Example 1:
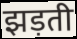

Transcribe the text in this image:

झड़ती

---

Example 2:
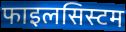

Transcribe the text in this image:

फाइलसिस्टम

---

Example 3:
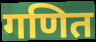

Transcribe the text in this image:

गणित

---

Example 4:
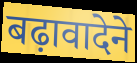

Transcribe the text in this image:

बढ़ावादेने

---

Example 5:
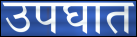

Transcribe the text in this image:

उपघात